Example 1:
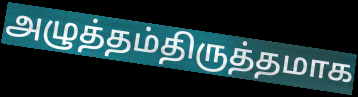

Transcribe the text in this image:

அழுத்தம்திருத்தமாக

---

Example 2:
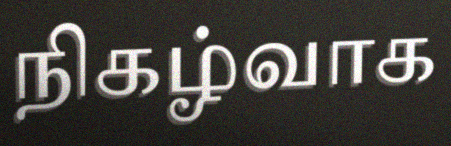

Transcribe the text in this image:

நிகழ்வாக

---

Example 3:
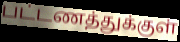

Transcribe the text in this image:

பட்டணத்துக்குள்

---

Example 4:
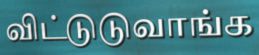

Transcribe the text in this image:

விட்டுடுவாங்க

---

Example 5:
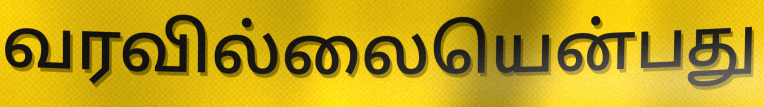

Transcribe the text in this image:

வரவில்லையென்பது